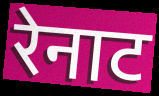
रेनाट